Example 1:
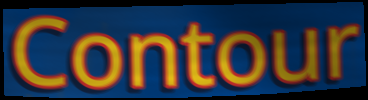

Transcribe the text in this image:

Contour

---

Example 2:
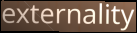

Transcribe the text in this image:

externality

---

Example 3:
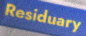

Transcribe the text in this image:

Residuary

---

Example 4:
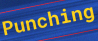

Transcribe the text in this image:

Punching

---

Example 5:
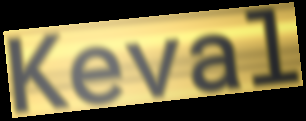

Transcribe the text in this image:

Keval